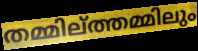
തമ്മില്ത്തമ്മിലും